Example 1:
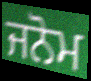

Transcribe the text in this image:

ਜਨੋਮ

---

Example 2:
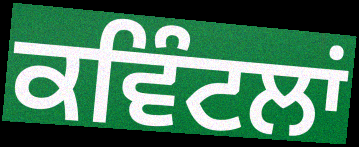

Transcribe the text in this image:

ਕਵਿੰਟਲਾਂ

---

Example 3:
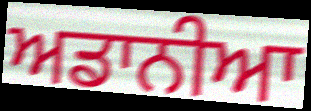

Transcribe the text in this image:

ਅਡਾਨੀਆ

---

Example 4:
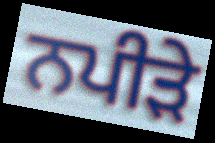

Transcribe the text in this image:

ਨਪੀੜੇ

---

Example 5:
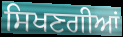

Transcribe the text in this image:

ਸਿਖਣਗੀਆਂ